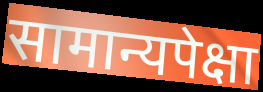
सामान्यपेक्षा